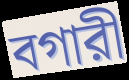
বগারী